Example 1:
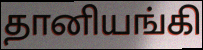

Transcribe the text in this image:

தானியங்கி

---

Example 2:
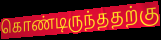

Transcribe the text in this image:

கொண்டிருந்ததற்கு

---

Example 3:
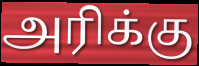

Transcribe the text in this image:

அரிக்கு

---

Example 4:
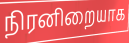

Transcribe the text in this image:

நிரனிறையாக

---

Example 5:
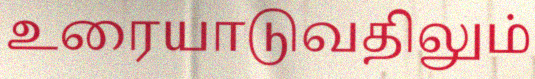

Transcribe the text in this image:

உரையாடுவதிலும்